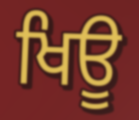
ਖਿਊ